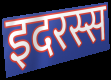
इदरस्स